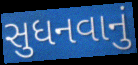
સુધનવાનું